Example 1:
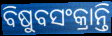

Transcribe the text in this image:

ବିଷୁବସଂକ୍ରାନ୍ତି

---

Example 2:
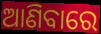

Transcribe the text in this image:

ଆଣିବାରେ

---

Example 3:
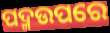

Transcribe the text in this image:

ପଦ୍ମଉପରେ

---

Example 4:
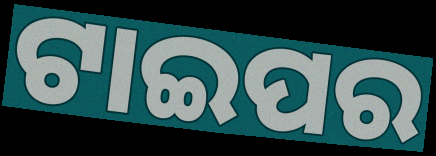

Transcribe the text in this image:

ଟାଇପର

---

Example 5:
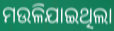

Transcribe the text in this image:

ମଉଳିଯାଇଥିଲା